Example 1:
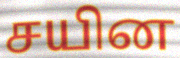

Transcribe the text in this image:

சயின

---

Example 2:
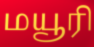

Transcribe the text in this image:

மயூரி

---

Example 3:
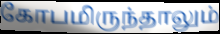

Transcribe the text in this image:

கோபமிருந்தாலும்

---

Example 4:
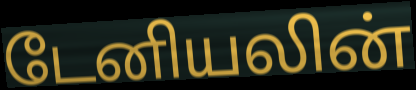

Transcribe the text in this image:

டேனியலின்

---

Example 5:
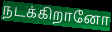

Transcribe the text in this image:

நடக்கிறானோ